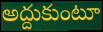
అద్దుకుంటూ